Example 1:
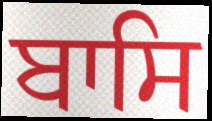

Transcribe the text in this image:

ਬਾਸਿ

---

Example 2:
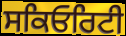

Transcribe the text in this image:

ਸਕਿਓਰਿਟੀ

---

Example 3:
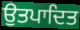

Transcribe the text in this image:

ਉਤਪਾਦਿਤ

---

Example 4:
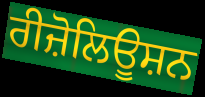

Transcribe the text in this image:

ਰੀਜ਼ੋਲਿਊਸ਼ਨ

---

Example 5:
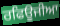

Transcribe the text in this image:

ਰਫਿਊਜੀਆ